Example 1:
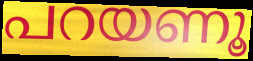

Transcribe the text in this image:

പറയണൂ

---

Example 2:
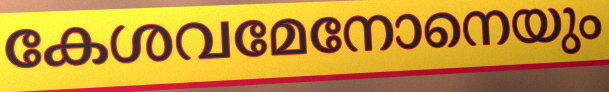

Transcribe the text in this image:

കേശവമേനോനെയും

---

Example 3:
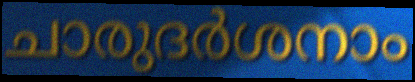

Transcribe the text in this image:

ചാരുദർശനാം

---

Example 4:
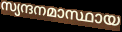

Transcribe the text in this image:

സ്യന്ദനമാസ്ഥായ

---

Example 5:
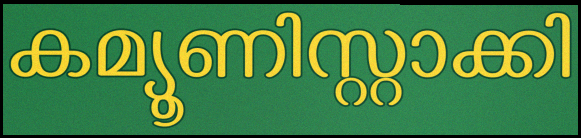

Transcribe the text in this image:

കമ്യൂണിസ്റ്റാക്കി